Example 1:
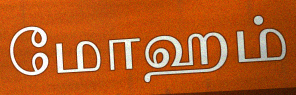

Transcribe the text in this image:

மோஹம்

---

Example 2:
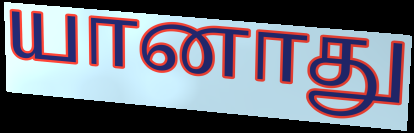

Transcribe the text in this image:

யானாது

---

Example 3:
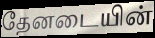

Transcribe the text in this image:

தேனடையின்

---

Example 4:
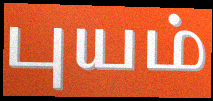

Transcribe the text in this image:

புயம்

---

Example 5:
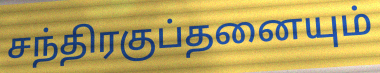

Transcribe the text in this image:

சந்திரகுப்தனையும்